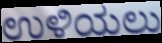
ಉಳಿಯಲು